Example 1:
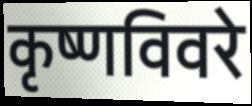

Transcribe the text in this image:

कृष्णविवरे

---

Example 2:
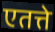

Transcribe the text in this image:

एतत्ते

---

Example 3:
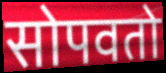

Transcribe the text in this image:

सोपवतो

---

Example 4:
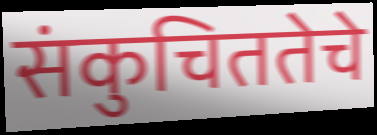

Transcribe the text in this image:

संकुचिततेचे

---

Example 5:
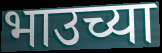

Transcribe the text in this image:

भाउच्या